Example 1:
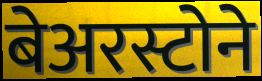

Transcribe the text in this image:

बेअरस्टोने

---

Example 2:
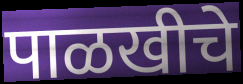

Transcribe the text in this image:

पाळखीचे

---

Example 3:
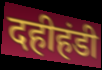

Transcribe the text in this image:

दहीहंडी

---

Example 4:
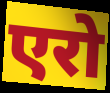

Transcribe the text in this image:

एरो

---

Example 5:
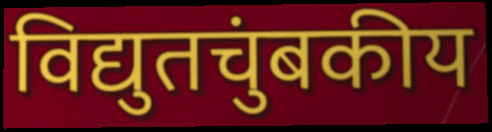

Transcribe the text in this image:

विद्युतचुंबकीय